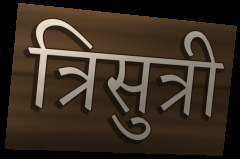
त्रिसुत्री